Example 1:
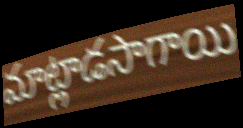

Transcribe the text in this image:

మాట్లాడసాగాయి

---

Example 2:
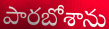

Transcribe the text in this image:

పారబోశాను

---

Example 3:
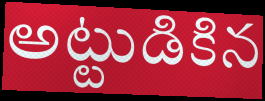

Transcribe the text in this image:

అట్టుడికిన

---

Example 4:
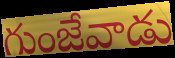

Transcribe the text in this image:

గుంజేవాడు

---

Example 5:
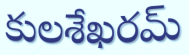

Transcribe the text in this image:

కులశేఖరమ్